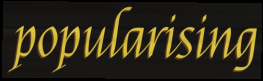
popularising